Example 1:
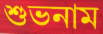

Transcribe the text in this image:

শুভনাম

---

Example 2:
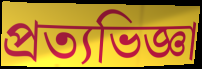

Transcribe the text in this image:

প্রত্যভিজ্ঞা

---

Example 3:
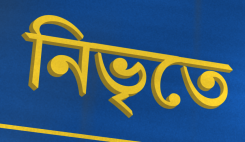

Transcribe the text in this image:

নিভৃতে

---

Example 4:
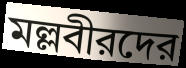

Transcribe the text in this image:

মল্লবীরদের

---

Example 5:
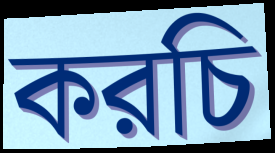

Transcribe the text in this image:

করচি